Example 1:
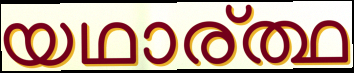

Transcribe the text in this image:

യഥാര്ത്ഥ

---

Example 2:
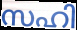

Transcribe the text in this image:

സഹി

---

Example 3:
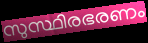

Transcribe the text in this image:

സുസ്ഥിരഭരണം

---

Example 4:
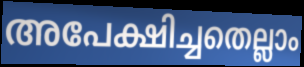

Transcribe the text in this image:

അപേക്ഷിച്ചതെല്ലാം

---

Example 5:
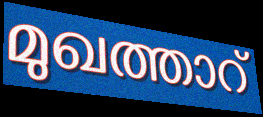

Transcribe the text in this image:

മുഖത്താറ്